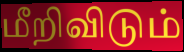
மீறிவிடும்